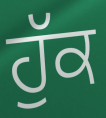
ਹੁੱਕ